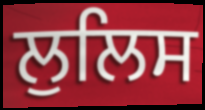
ਲੁਲਿਸ